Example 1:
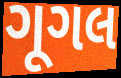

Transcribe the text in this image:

ગૂગલ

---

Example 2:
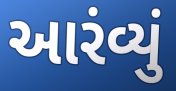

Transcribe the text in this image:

આરંવ્યું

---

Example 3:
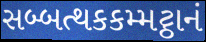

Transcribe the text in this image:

સબ્બત્થકકમ્મટ્ઠાનં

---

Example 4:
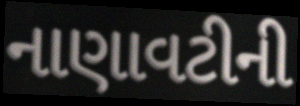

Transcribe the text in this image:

નાણાવટીની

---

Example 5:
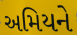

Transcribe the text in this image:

અમિયને